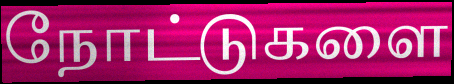
நோட்டுகளை